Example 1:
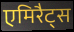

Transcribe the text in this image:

एमिरैट्स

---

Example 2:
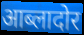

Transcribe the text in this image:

आब्लादोर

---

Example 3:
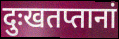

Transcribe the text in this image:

दुःखतप्तानां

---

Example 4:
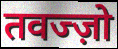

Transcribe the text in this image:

तवज्ज़ो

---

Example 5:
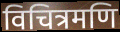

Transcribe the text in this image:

विचित्रमणि